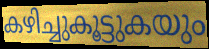
കഴിച്ചുകൂട്ടുകയും